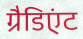
ग्रैडिएंट